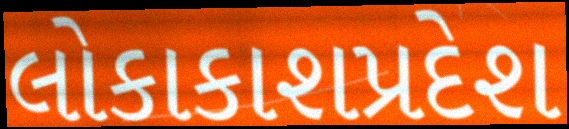
લોકાકાશપ્રદેશ